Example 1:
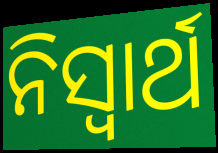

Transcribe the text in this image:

ନିସ୍ୱାର୍ଥ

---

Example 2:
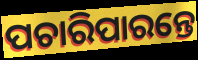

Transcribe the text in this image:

ପଚାରିପାରନ୍ତେ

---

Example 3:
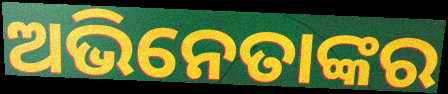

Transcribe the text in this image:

ଅଭିନେତାଙ୍କର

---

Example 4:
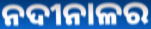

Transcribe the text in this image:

ନଦୀନାଳର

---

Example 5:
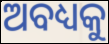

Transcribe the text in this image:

ଅବଧ୍ୟକୁ